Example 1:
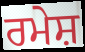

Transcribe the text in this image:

ਰਮੇਸ਼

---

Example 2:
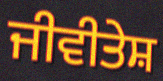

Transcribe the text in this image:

ਜੀਵੀਤੇਸ਼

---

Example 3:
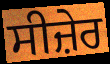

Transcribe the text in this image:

ਸੀਜ਼ੇਰ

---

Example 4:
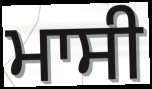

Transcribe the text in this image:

ਮਾਸੀ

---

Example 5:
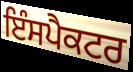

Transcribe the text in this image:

ਇੰਸਪੈਕਟਰ